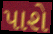
પાશે